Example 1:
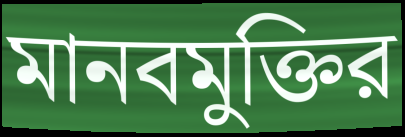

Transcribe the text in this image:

মানবমুক্তির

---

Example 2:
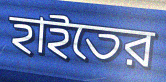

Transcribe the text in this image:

হাইতের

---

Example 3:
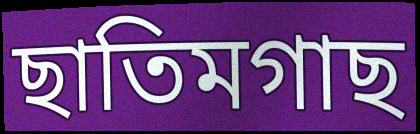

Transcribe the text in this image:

ছাতিমগাছ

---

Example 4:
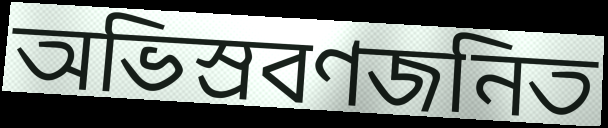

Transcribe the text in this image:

অভিস্রবণজনিত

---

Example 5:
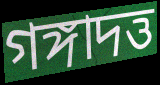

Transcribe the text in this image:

গঙ্গাদত্ত